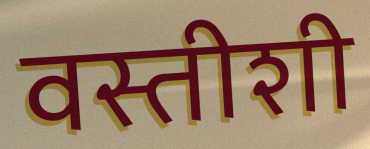
वस्‍तीशी